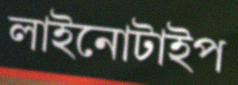
লাইনোটাইপ